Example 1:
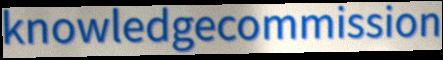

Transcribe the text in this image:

knowledgecommission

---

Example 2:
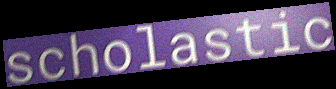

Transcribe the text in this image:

scholastic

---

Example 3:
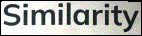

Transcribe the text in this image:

Similarity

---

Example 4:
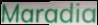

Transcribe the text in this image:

Maradia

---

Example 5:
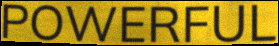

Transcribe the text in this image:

POWERFUL